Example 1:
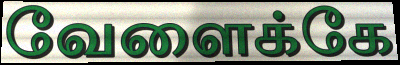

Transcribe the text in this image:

வேளைக்கே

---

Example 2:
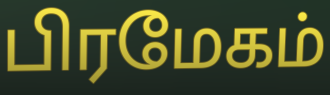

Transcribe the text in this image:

பிரமேகம்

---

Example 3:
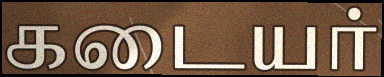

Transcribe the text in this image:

கடையர்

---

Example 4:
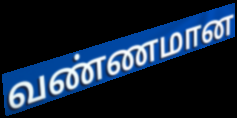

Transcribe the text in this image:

வண்ணமான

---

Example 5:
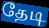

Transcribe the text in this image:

தேடி